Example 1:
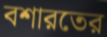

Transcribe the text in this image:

বশারতের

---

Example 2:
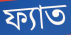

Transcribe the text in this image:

ফ্যাত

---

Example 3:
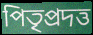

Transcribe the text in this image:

পিতৃপ্রদত্ত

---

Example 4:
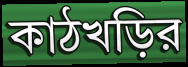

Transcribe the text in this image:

কাঠখড়ির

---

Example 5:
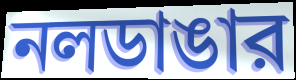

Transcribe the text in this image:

নলডাঙার